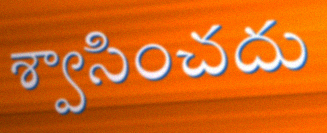
శ్వాసించదు